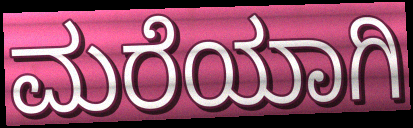
ಮರೆಯಾಗಿ